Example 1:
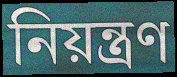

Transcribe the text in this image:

নিয়ন্ত্ৰণ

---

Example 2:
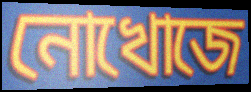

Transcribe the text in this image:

নোখোজে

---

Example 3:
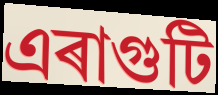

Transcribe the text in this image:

এৰাগুটি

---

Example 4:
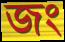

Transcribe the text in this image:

জং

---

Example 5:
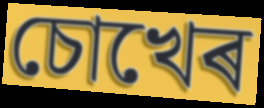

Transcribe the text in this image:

চোখেৰ